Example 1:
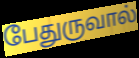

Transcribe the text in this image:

பேதுருவால்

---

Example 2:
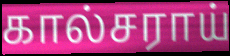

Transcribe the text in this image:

கால்சராய்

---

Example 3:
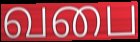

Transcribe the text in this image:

வபை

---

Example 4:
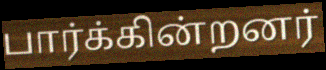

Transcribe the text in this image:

பார்க்கின்றனர்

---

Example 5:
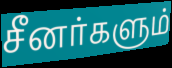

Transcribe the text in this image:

சீனர்களும்